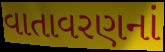
વાતાવરણનાં